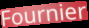
Fournier